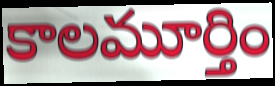
కాలమూర్తిం